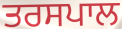
ਤਰਸਪਾਲ